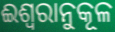
ଈଶ୍ଵରାନୁକୂଳ